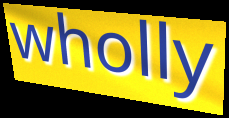
wholly